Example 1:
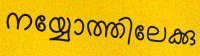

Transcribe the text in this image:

നയ്യോത്തിലേക്കു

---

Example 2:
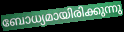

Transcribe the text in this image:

ബോധ്യമായിരിക്കുന്നു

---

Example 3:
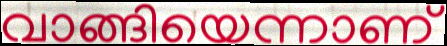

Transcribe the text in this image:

വാങ്ങിയെന്നാണ്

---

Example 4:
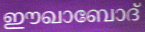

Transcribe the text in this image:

ഈഖാബോദ്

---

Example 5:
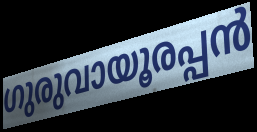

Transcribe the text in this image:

ഗുരുവായൂരപ്പൻ